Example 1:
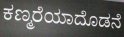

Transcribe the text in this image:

ಕಣ್ಮರೆಯಾದೊಡನೆ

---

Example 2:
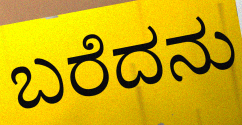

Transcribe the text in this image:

ಬರೆದನು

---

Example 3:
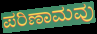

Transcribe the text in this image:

ಪರಿಣಾಮವು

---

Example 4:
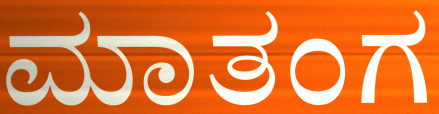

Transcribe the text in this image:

ಮಾತಂಗ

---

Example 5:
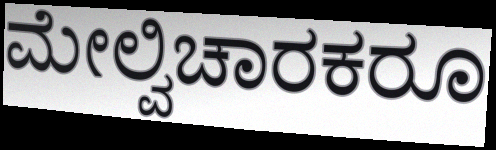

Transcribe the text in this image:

ಮೇಲ್ವಿಚಾರಕರೂ